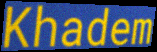
Khadem